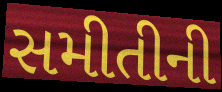
સમીતીની